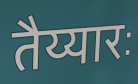
तैय्यारः